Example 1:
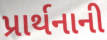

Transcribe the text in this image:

પ્રાર્થનાની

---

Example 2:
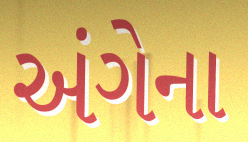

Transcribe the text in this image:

અંગેના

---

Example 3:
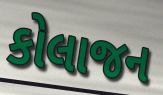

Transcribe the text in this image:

કોલાજન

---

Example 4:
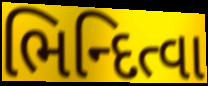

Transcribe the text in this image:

ભિન્દિત્વા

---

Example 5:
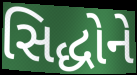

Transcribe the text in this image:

સિદ્ધોને